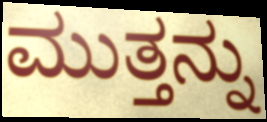
ಮುತ್ತನ್ನು